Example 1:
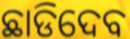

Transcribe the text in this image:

ଛାଡିଦେବ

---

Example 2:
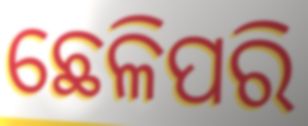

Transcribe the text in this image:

ଛେଳିପରି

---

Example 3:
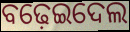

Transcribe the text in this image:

ବଢ଼େଇଦେଲ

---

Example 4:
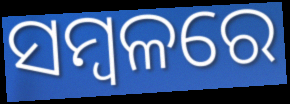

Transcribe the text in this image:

ସମ୍ବଳରେ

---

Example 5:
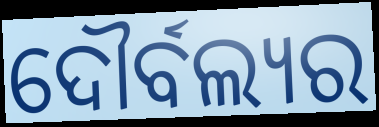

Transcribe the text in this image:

ଦୌର୍ବଲ୍ୟର